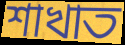
শাখাত